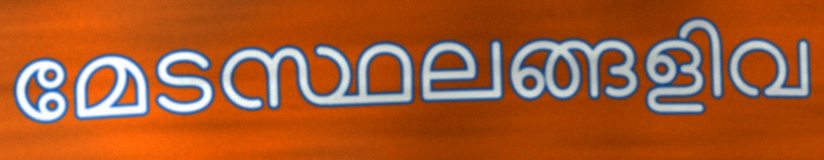
മേടസ്ഥലങ്ങളിവ